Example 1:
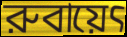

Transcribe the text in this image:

রুবায়েৎ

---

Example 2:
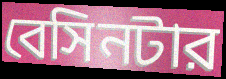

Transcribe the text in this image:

বেসিনটার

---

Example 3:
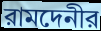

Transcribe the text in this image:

রামদেনীর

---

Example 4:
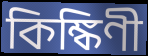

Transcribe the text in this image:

কিঙ্কিণী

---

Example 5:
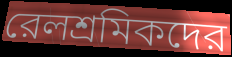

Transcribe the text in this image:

রেলশ্রমিকদের